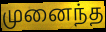
முனைந்த